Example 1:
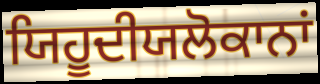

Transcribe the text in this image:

ਯਿਹੂਦੀਯਲੋਕਾਨਾਂ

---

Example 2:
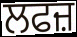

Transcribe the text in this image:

ਲਫਜ਼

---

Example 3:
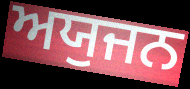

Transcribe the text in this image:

ਅਯੁਜਨ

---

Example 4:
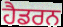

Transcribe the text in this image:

ਹੈਡਰਨ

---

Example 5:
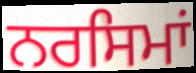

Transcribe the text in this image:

ਨਰਸਿਮਾਂ